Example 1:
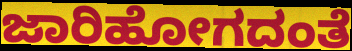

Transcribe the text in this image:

ಜಾರಿಹೋಗದಂತೆ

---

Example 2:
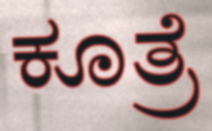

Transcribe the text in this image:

ಕೂತ್ರೆ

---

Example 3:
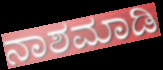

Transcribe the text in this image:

ನಾಶಮಾಡಿ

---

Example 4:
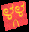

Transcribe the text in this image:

ಳ್ಗಳ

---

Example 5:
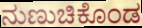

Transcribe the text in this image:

ನುಣುಚಿಕೊಂಡ